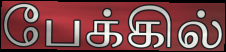
பேக்கில்